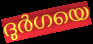
ദുർഗയെ